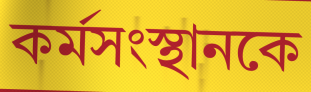
কর্মসংস্থানকে